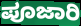
ಪೂಜಾರಿ